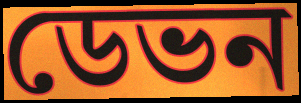
ডেভন